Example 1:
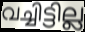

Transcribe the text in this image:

വച്ചിട്ടില്ല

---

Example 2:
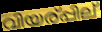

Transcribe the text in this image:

വിയര്പ്പില്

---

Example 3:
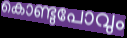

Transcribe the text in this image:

കൊണ്ടുപോവും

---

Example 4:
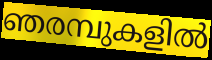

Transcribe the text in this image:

ഞരമ്പുകളിൽ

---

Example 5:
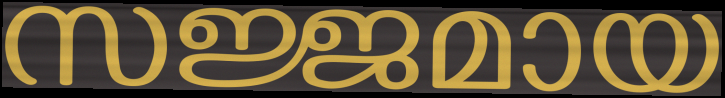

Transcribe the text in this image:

സജ്ജമായ